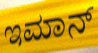
ಇಮಾನ್